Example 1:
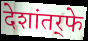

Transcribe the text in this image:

देशांतर्फे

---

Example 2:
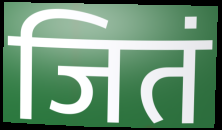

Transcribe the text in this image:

जितं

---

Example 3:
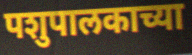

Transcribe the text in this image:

पशुपालकाच्या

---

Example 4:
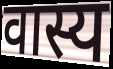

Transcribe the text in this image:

वास्य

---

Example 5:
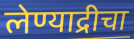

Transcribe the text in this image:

लेण्याद्रीचा